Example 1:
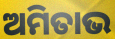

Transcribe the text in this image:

ଅମିତାଭ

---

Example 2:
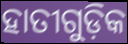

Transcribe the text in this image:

ହାତୀଗୁଡ଼ିକ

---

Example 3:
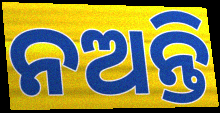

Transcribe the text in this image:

ନଅନ୍ତି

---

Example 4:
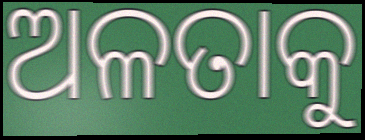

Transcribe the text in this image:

ଅଳତାକୁ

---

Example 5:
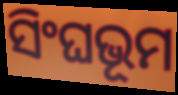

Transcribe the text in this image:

ସିଂଘଭୂମ